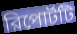
রিপোর্টটি